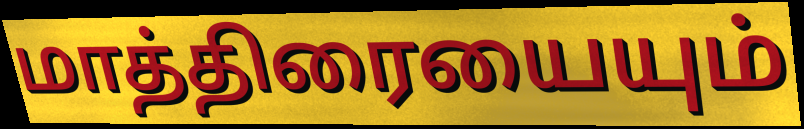
மாத்திரையையும்